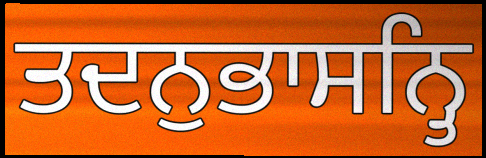
ਤਦਨੁਭਾਸਨ੍ਤਿ